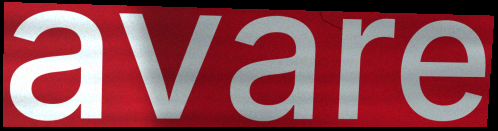
avare